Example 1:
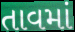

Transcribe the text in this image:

તાવમાં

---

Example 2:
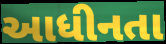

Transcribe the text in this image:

આધીનતા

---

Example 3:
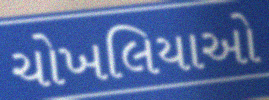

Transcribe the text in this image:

ચોખલિયાઓ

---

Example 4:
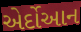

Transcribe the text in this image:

એર્દોઆન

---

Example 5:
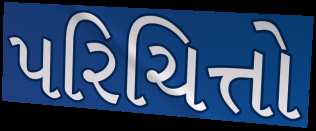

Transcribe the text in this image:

પરિચિત્તો